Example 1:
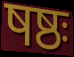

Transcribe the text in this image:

षष्ठः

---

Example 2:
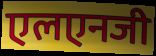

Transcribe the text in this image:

एलएनजी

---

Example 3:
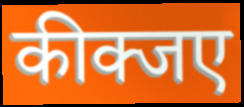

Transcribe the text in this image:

कीक्जए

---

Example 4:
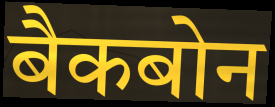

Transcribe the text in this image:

बैकबोन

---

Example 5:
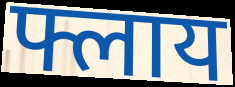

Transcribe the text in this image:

फ्लाय